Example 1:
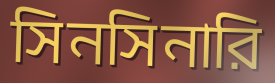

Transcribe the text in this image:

সিনসিনারি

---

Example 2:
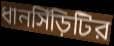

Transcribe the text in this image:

ধানসিঁড়িটির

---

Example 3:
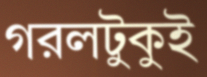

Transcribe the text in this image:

গরলটুকুই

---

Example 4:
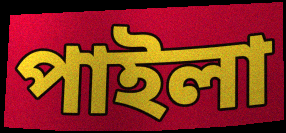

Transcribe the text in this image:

পাইলা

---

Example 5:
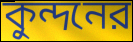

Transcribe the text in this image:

কুন্দনের